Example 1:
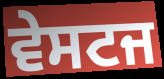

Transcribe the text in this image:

ਵੇਸਟਜ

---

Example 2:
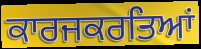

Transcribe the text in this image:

ਕਾਰਜਕਰਤਿਆਂ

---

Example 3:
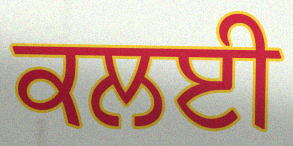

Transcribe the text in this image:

ਕਲਈ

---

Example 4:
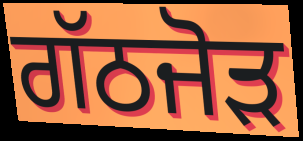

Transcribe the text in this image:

ਗੱਠਜੋੜ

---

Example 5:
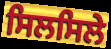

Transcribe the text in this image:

ਸਿਲਸਿਲੇ